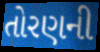
તોરણની